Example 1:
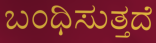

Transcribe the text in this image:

ಬಂಧಿಸುತ್ತದೆ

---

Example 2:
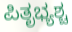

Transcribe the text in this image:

ಪಿತೃಭ್ಯಶ್ಚ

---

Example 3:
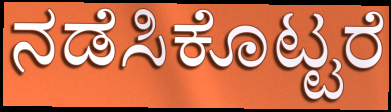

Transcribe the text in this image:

ನಡೆಸಿಕೊಟ್ಟರೆ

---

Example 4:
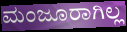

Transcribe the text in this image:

ಮಂಜೂರಾಗಿಲ್ಲ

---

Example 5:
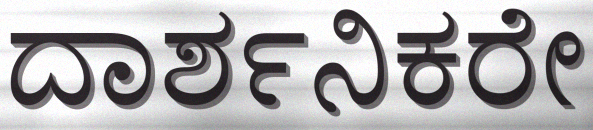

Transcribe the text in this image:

ದಾರ್ಶನಿಕರೇ